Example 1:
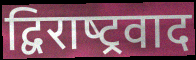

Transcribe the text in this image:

द्विराष्ट्रवाद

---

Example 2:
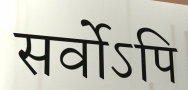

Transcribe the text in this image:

सर्वोऽपि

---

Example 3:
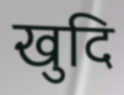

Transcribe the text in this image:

खुदि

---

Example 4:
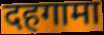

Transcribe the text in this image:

दहगामा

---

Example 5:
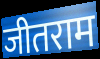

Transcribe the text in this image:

जीतराम